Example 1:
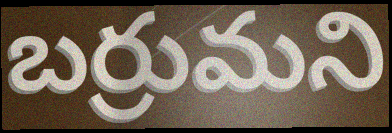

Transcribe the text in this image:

బర్రుమని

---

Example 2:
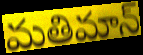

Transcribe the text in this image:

మతిమాన్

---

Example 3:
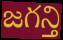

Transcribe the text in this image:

జగన్తి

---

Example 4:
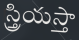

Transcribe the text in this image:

స్త్రియస్తా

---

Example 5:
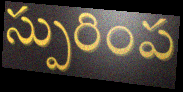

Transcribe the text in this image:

స్పురింప